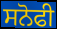
ਸਨੋਫੀ